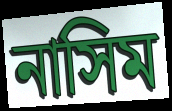
নাসিম